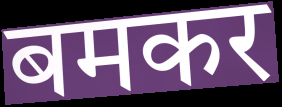
बमकर